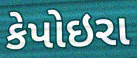
કેપોઇરા